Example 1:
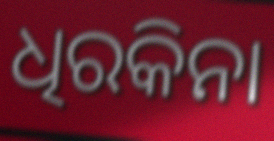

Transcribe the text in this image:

ଧିରକିନା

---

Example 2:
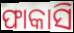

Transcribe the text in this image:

ଫାକାସି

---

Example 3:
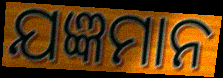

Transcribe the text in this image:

ଯଜ୍ଞମାନ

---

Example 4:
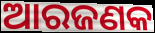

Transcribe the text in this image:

ଆରଜଣକ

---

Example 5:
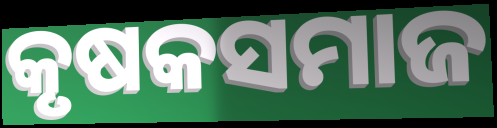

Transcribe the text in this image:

କୃଷକସମାଜ